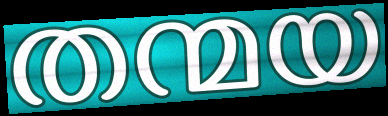
തന്മയ